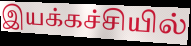
இயக்கச்சியில்